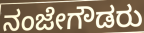
ನಂಜೇಗೌಡರು